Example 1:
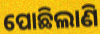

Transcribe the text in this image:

ପୋଛିଲାଣି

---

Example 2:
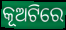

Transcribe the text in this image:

କୂଅଟିରେ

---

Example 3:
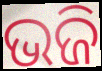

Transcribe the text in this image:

ଭଜି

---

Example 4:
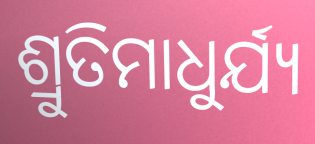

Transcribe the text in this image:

ଶ୍ରୁତିମାଧୁର୍ଯ୍ୟ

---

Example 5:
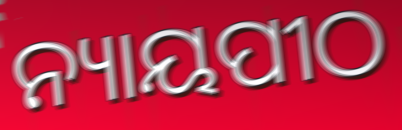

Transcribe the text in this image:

ନ୍ୟାୟପୀଠ